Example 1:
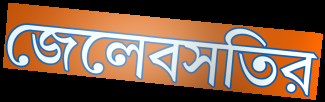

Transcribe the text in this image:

জেলেবসতির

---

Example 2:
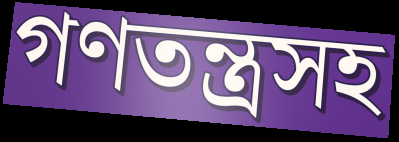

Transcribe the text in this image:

গণতন্ত্রসহ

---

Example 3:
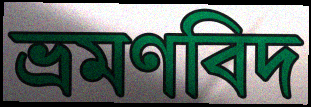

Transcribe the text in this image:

ভ্রমণবিদ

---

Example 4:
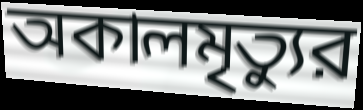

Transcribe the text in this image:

অকালমৃত্যুর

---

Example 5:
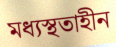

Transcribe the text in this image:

মধ্যস্থতাহীন